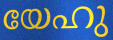
യേഹു